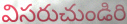
విసరుచుండిరి